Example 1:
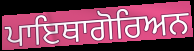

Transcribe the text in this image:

ਪਾਇਥਾਗੋਰਿਅਨ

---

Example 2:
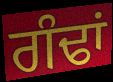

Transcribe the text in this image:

ਗੰਢਾਂ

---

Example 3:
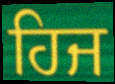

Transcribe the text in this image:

ਹਿਜ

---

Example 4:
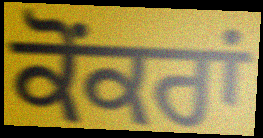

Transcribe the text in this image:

ਕੋਂਕਰਾਂ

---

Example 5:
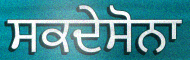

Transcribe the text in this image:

ਸਕਦੇਸੋਨਾ